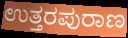
ಉತ್ತರಪುರಾಣ